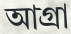
আগ্রা